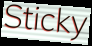
Sticky